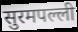
सुरमपल्ली